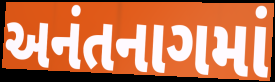
અનંતનાગમાં